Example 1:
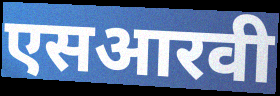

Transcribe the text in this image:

एसआरवी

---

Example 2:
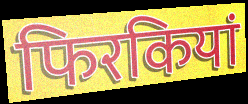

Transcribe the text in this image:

फिरकियां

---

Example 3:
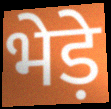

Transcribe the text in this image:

भेड़े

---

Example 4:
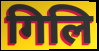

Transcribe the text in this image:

गिलि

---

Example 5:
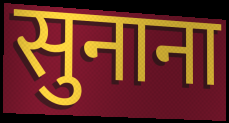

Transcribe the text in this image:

सुनाना